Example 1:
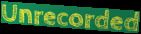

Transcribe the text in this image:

Unrecorded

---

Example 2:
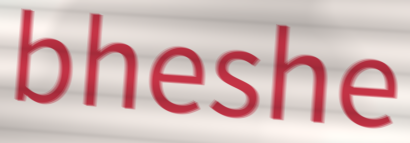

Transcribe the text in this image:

bheshe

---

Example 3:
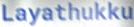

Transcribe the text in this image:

Layathukku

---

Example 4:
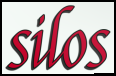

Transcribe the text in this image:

silos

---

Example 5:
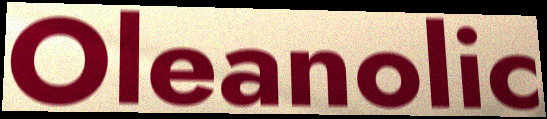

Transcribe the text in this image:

Oleanolic